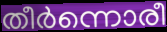
തീർന്നൊരീ